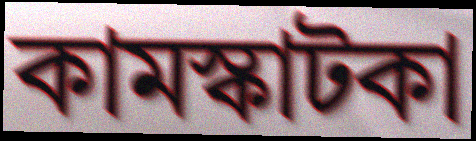
কামস্কাটকা